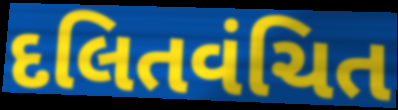
દલિતવંચિત